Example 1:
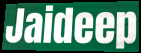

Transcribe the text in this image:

Jaideep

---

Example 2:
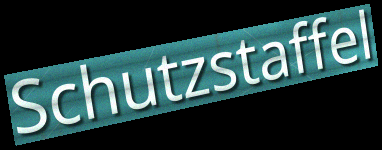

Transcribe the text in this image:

Schutzstaffel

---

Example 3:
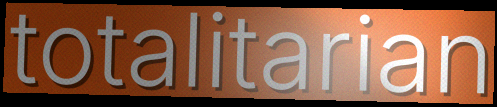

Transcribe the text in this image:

totalitarian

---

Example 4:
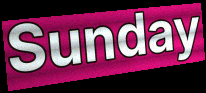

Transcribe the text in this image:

Sunday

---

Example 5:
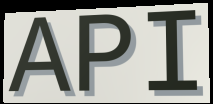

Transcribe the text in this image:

API